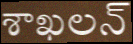
శాఖలన్